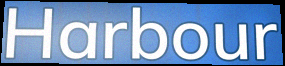
Harbour